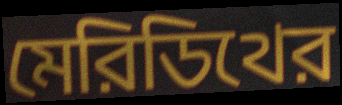
মেরিডিথের